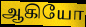
ஆகியோ